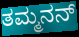
ತಮ್ಮನನ್